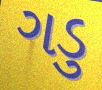
ગડુ